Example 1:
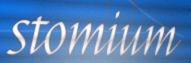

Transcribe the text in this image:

stomium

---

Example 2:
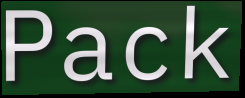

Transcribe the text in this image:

Pack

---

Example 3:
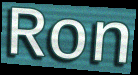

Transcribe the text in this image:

Ron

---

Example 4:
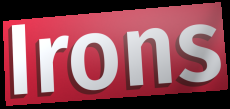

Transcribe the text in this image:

Irons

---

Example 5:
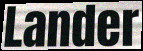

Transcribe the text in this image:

Lander